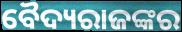
ବୈଦ୍ୟରାଜଙ୍କର